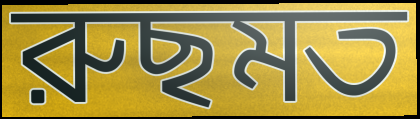
রুছমত